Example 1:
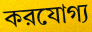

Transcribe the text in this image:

করযোগ্য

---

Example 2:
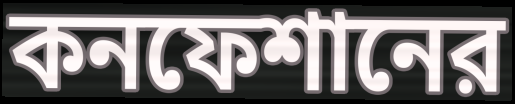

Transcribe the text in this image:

কনফেশানের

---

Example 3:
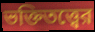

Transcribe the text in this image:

ভক্তিতত্ত্বের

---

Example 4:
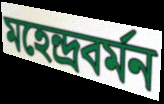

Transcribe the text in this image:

মহেন্দ্রবর্মন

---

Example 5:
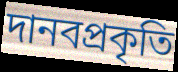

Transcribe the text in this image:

দানবপ্রকৃতি